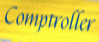
Comptroller